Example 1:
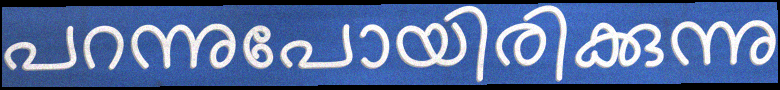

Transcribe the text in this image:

പറന്നുപോയിരിക്കുന്നു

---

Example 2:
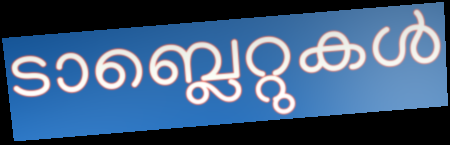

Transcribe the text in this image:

ടാബ്ലെറ്റുകൾ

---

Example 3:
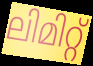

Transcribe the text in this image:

ലിമിറ്റ്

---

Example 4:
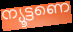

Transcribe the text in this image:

ന്യൂട്ടണെ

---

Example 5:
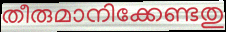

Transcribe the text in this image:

തീരുമാനിക്കേണ്ടതു